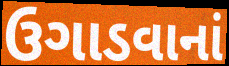
ઉગાડવાનાં